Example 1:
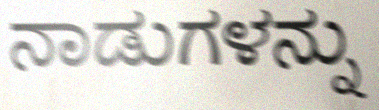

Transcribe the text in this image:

ನಾಡುಗಳನ್ನು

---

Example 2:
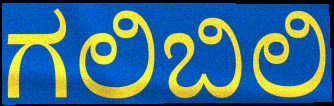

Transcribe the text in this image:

ಗಲಿಬಿಲಿ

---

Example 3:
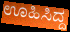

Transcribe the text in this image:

ಊಹಿಸಿದ್ದ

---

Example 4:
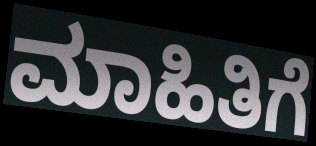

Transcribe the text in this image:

ಮಾಹಿತಿಗೆ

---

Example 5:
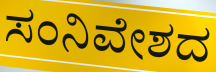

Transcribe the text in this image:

ಸಂನಿವೇಶದ